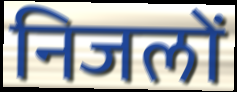
निजलों